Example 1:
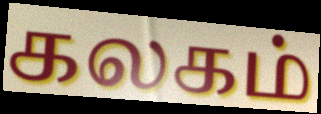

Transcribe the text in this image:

கலகம்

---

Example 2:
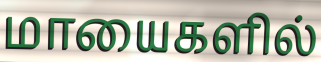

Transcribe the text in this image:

மாயைகளில்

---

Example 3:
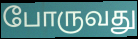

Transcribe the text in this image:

போருவது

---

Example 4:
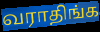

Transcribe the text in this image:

வராதிங்க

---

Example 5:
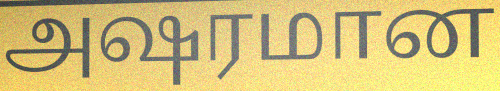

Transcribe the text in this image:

அஷரமான